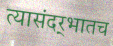
त्यासंदर्भातच